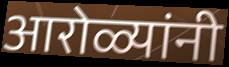
आरोळ्यांनी